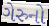
ગેરુનો